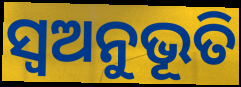
ସ୍ୱଅନୁଭୂତି